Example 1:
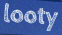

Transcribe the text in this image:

looty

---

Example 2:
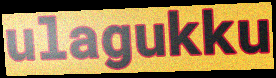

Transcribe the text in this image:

ulagukku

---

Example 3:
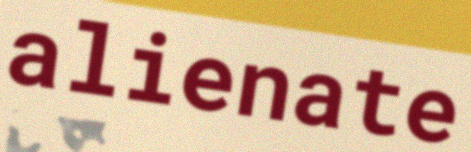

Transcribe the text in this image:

alienate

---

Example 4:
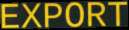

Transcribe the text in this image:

EXPORT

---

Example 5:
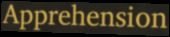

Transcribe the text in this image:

Apprehension